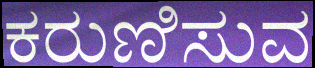
ಕರುಣಿಸುವ